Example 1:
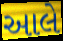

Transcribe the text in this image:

આલે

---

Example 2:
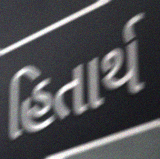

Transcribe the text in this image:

હિતાર્થ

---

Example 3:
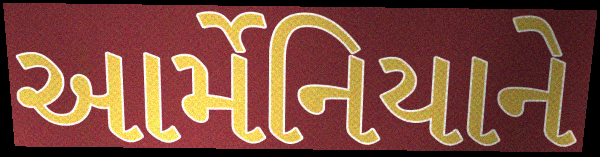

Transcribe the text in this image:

આર્મેનિયાને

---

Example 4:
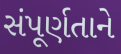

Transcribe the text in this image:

સંપૂર્ણતાને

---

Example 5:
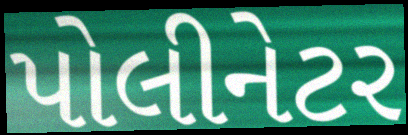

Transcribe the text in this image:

પોલીનેટર